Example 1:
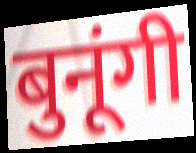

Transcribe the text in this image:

बुनूंगी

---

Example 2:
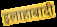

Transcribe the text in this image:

इलाहाबादी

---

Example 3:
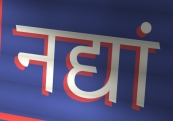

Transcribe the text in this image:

नद्यां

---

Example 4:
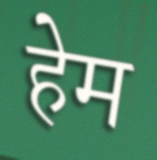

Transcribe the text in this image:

हेम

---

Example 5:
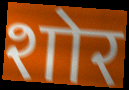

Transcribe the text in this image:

शोर